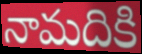
నామదికి